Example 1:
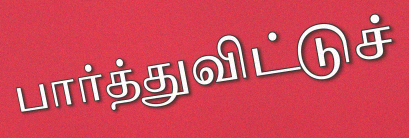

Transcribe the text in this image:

பார்த்துவிட்டுச்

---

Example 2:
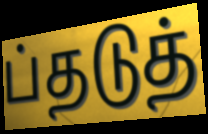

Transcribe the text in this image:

ப்தடுத்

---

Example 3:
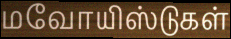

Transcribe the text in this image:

மவோயிஸ்டுகள்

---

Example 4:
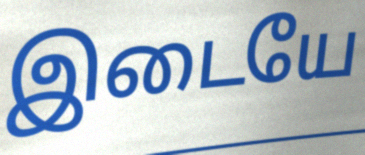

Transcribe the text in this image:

இடையே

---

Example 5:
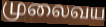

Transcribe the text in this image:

முலைவய